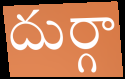
దుర్గా